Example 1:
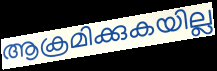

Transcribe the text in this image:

ആക്രമിക്കുകയില്ല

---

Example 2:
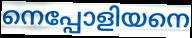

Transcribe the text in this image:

നെപ്പോളിയനെ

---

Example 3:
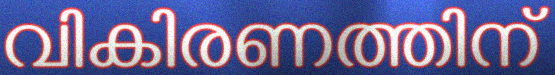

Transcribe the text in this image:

വികിരണത്തിന്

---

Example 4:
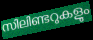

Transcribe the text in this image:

സിലിണ്ടറുകളും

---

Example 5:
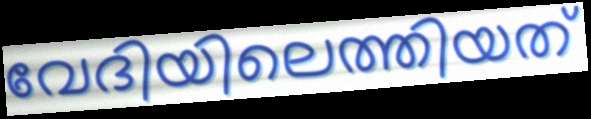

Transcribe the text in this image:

വേദിയിലെത്തിയത്